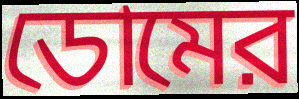
ডোমের